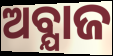
ଅବ୍ଯାଜ